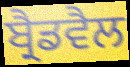
ਬ੍ਰੈਡਵੈਲ